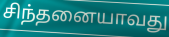
சிந்தனையாவது